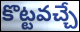
కొట్టవచ్చే